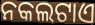
ନକଲଟାଏ